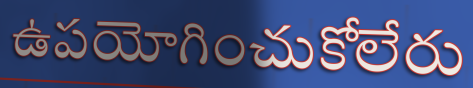
ఉపయోగించుకోలేరు